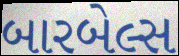
બારબેલ્સ